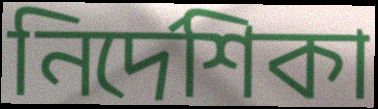
নির্দেশিকা